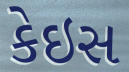
કેઇસ